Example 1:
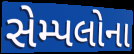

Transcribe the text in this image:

સેમ્પલોના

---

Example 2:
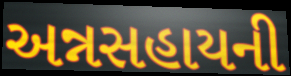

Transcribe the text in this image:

અન્નસહાયની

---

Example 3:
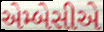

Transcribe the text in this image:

એમ્બેસીએ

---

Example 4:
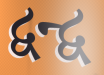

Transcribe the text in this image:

દ્વન્દ્વ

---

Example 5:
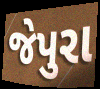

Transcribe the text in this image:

જેપુરા